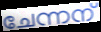
ചേന്നന്